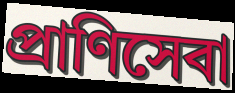
প্রাণিসেবা